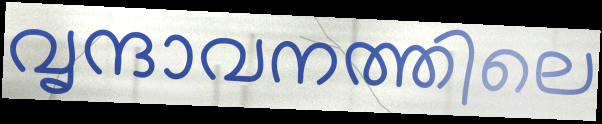
വൃന്ദാവനത്തിലെ